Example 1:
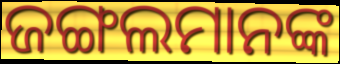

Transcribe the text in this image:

ଜଙ୍ଗଲମାନଙ୍କ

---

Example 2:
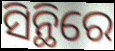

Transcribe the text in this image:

ସିନ୍ଥିରେ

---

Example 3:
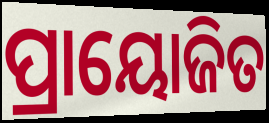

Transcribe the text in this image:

ପ୍ରାୟୋଜିତ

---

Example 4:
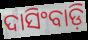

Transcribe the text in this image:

ଦାସିଂବାଡ଼ି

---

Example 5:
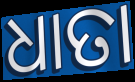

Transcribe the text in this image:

ଧାତା